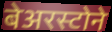
बेअरस्टोने